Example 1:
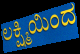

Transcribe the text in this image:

ಲಕ್ಷ್ಮಿಯಿಂದ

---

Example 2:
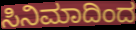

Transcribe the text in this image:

ಸಿನಿಮಾದಿಂದ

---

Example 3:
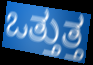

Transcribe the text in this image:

ಒತ್ತುತ್ತ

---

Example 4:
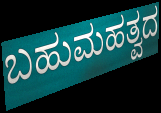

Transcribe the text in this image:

ಬಹುಮಹತ್ವದ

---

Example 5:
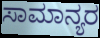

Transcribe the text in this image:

ಸಾಮಾನ್ಯರ